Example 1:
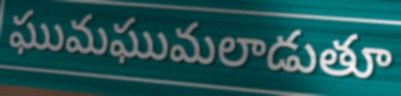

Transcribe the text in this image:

ఘుమఘుమలాడుతూ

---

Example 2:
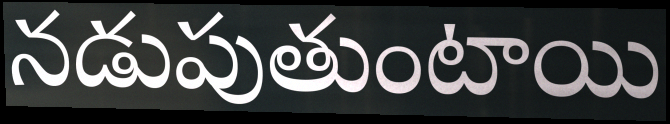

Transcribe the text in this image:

నడుపుతుంటాయి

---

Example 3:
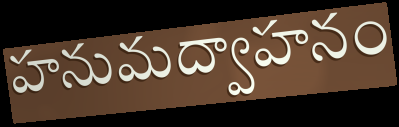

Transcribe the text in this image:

హనుమద్వాహనం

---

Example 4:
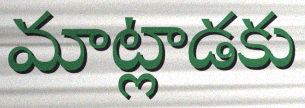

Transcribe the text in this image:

మాట్లాడకు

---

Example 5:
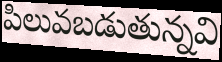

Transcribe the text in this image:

పిలువబడుతున్నవి